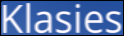
Klasies